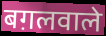
बग़लवाले